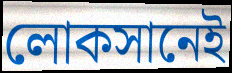
লোকসানেই